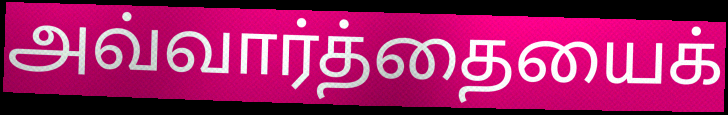
அவ்வார்த்தையைக்